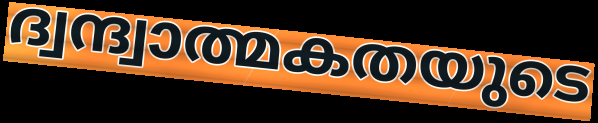
ദ്വന്ദ്വാത്മകതയുടെ